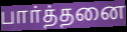
பார்த்தனை